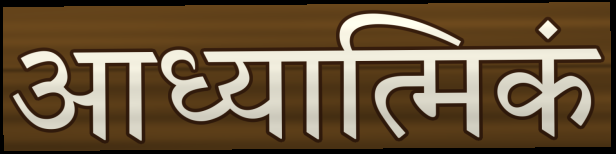
आध्यात्मिकं